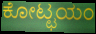
ಕೋಟ್ಟಯಂ